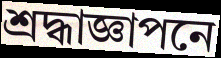
শ্রদ্ধাজ্ঞাপনে